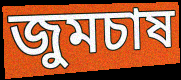
জুমচাষ